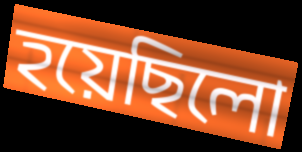
হয়েছিলো